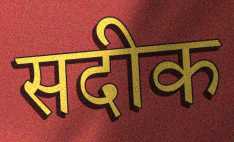
सदीक